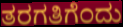
ತರಗತಿಗೆಂದು